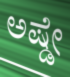
ಅಷ್ಡೇ